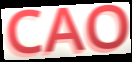
CAO